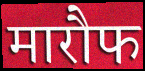
मारौफ